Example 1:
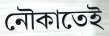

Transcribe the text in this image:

নৌকাতেই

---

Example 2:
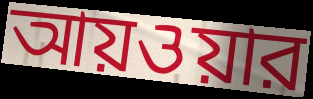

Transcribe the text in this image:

আয়ওয়ার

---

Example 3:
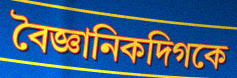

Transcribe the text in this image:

বৈজ্ঞানিকদিগকে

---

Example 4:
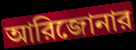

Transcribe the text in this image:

আরিজোনার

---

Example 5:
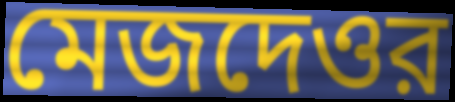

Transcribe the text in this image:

মেজদেওর